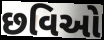
છવિઓ